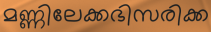
മണ്ണിലേക്കഭിസരിക്ക